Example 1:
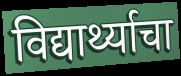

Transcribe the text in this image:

विद्यार्थ्याचा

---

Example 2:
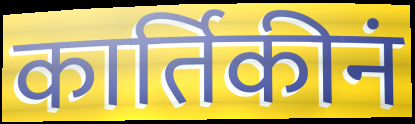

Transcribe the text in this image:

कार्तिकीनं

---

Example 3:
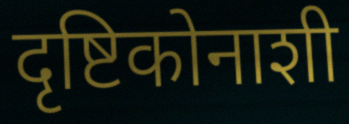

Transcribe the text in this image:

दृष्टिकोनाशी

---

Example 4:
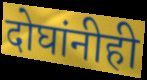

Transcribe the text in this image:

दोघांनीही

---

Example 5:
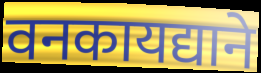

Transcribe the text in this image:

वनकायद्याने